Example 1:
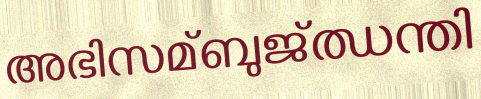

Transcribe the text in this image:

അഭിസമ്ബുജ്ഝന്തി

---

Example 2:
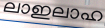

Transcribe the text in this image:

ലാഇലാഹ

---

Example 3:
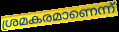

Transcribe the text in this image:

ശ്രമകരമാണെന്ന്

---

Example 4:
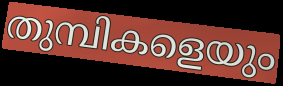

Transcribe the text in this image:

തുമ്പികളെയും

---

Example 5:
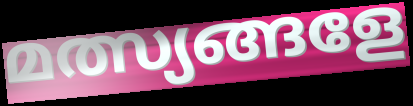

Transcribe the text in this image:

മത്സ്യങ്ങളേ